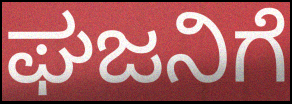
ಘಜನಿಗೆ